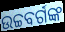
ଉଚ୍ଚବର୍ଗଙ୍କ